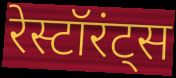
रेस्टॉरंट्स